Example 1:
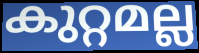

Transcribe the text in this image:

കുറ്റമല്ല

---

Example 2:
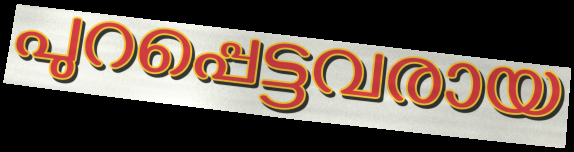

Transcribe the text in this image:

പുറപ്പെട്ടവരായ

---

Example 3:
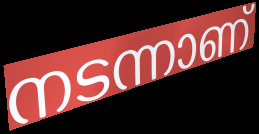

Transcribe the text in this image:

നടന്നാണ്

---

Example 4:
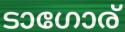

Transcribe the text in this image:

ടാഗോര്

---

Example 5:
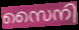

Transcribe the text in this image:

സൈനി